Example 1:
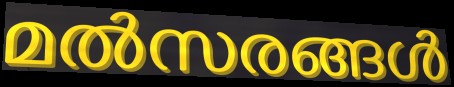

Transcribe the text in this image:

മൽസരങ്ങൾ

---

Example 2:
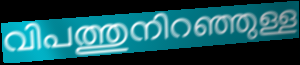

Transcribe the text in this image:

വിപത്തുനിറഞ്ഞുള്ള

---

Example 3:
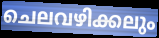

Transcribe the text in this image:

ചെലവഴിക്കലും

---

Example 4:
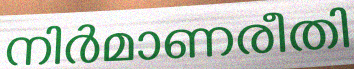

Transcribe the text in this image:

നിർമാണരീതി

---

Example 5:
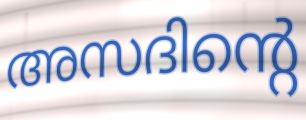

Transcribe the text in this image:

അസദിന്റെ